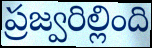
ప్రజ్వరిల్లింది